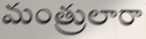
మంత్రులారా